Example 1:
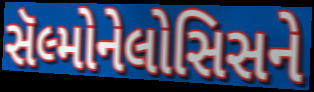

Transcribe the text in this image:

સૅલ્મોનેલોસિસને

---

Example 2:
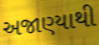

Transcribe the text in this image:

અજાણ્યાથી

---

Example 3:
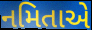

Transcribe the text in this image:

નમિતાએ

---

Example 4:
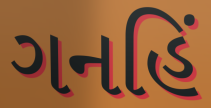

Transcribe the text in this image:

ગનહિં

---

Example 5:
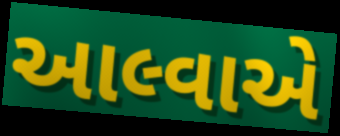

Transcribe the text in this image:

આલ્વાએ